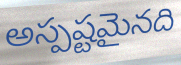
అస్పష్టమైనది